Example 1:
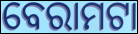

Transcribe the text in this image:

ବେରାମଟା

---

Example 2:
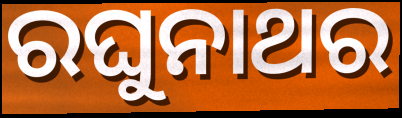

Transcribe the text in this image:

ରଘୁନାଥର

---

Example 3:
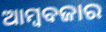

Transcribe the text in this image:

ଆମ୍ୱବଜାର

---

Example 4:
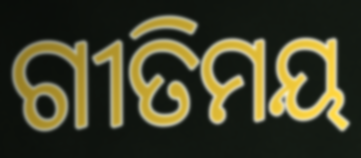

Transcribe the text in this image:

ଗୀତିମୟ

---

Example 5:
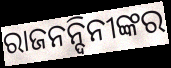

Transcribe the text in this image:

ରାଜନନ୍ଦିନୀଙ୍କର